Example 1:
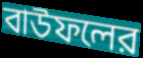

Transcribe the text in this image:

বাউফলের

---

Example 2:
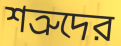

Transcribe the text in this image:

শত্রুদের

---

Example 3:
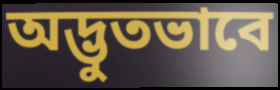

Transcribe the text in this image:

অদ্ভুতভাবে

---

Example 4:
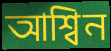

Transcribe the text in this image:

আশ্বিন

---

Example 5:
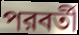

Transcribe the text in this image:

পরবর্তী